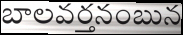
బాలవర్తనంబున